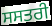
ਸਸਤਰੀ